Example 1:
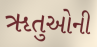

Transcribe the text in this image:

ૠતુઓની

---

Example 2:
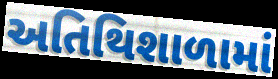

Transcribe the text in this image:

અતિથિશાળામાં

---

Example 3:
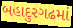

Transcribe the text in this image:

બહાદુરગઢમાં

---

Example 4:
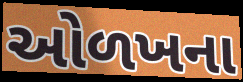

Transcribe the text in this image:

ઓળખના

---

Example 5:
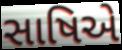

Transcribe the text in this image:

સાષિએ